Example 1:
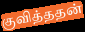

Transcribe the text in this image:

குவித்ததன்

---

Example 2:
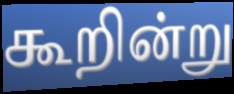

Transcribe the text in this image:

கூறின்று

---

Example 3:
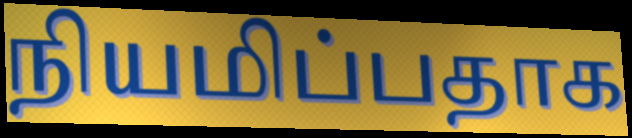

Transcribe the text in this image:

நியமிப்பதாக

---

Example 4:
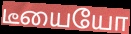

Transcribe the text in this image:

டீயையோ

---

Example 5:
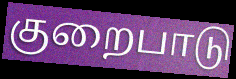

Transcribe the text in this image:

குறைபாடு